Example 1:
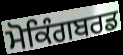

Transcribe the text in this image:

ਮੋਕਿੰਗਬਰਡ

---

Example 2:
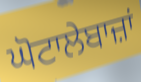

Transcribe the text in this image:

ਘੋਟਾਲੇਬਾਜ਼ਾਂ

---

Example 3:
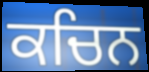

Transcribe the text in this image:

ਕਚਿਨ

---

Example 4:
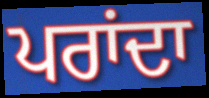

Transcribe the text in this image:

ਪਰਾਂਦਾ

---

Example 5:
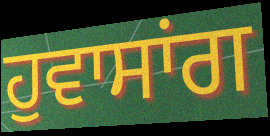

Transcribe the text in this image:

ਹੁਵਾਸਾਂਗ